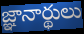
జ్ఞానార్థులు